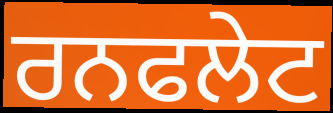
ਰਨਫਲੇਟ